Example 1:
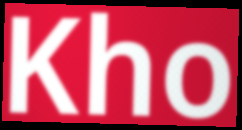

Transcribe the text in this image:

Kho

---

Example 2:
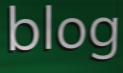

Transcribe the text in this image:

blog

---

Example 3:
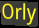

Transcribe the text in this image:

Orly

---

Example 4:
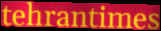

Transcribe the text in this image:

tehrantimes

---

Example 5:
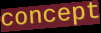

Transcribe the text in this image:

concept